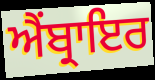
ਐਂਬ੍ਰਾਇਰ